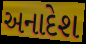
અનાદેશ